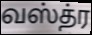
வஸ்த்ர